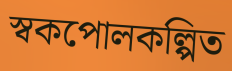
স্বকপোলকল্পিত